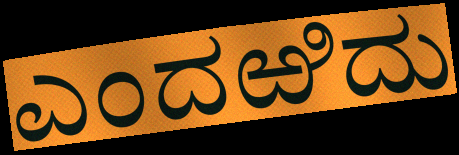
ಎಂದಱಿದು